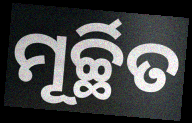
ମୂର୍ଚ୍ଛିତ